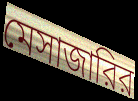
মেসাজারির